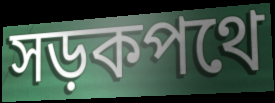
সড়কপথে